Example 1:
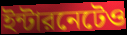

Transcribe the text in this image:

ইন্টারনেটেও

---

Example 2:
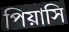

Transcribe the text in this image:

পিয়াসি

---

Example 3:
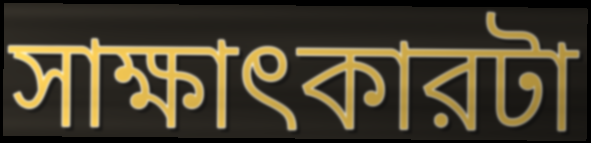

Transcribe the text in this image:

সাক্ষাৎকারটা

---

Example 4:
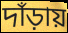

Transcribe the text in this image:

দাঁড়ায়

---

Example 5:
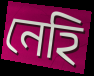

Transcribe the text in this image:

নেহি